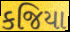
કજિયા